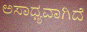
ಅಸಾಧ್ಯವಾಗಿದೆ